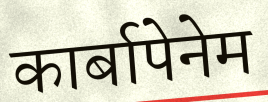
कार्बापेनेम